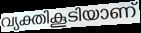
വ്യക്തികൂടിയാണ്